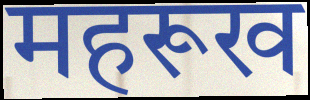
महरूख